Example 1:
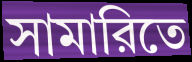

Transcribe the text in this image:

সামারিতে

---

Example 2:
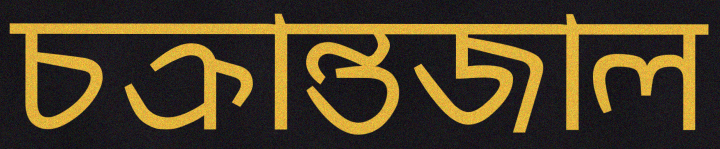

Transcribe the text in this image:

চক্রান্তজাল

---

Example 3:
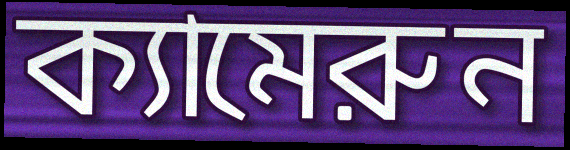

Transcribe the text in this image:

ক্যামেরুন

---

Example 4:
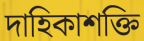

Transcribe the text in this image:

দাহিকাশক্তি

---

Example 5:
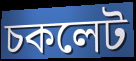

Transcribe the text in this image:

চকলেট